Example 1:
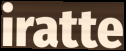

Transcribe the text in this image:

iratte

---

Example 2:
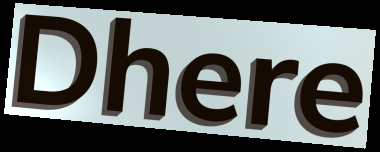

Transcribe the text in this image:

Dhere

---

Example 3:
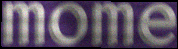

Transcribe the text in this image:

mome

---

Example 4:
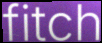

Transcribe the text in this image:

fitch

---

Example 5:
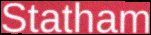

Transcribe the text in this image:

Statham